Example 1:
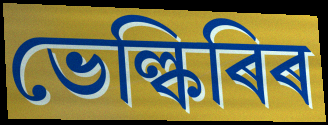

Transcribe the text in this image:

ভেল্কিৰিৰ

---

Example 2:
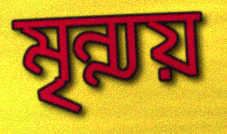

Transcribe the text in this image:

মৃন্ময়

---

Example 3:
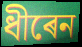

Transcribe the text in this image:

ধীৰেন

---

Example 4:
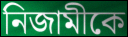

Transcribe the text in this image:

নিজামীকে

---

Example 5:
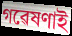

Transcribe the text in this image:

গৱেষণাই